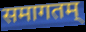
समागतम्